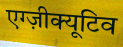
एग्ज़ीक्यूटिव